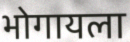
भोगायला